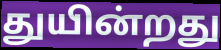
துயின்றது